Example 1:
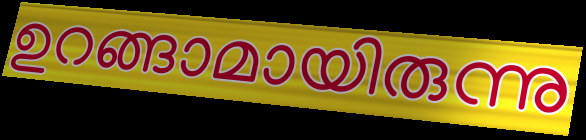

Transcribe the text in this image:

ഉറങ്ങാമായിരുന്നു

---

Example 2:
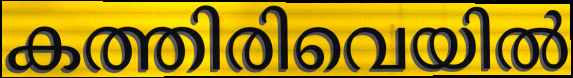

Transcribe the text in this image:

കത്തിരിവെയിൽ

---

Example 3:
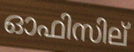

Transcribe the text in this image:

ഓഫിസില്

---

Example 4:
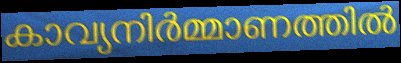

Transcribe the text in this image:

കാവ്യനിർമ്മാണത്തിൽ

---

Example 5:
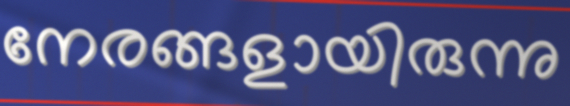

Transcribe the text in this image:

നേരങ്ങളായിരുന്നു